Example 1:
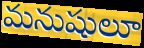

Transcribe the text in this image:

మనుషులూ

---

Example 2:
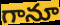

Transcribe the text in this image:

గానూ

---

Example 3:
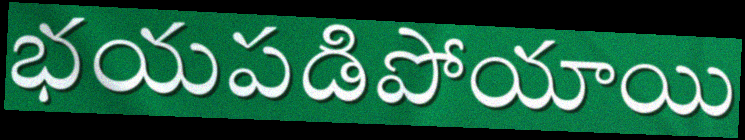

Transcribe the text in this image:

భయపడిపోయాయి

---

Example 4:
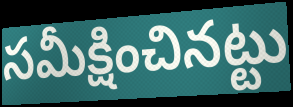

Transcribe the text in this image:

సమీక్షించినట్టు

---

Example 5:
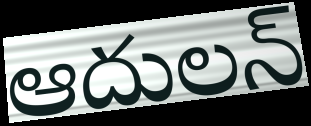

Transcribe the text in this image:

ఆదులన్